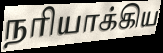
நரியாக்கிய